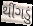
થીંગડું